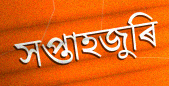
সপ্তাহজুৰি